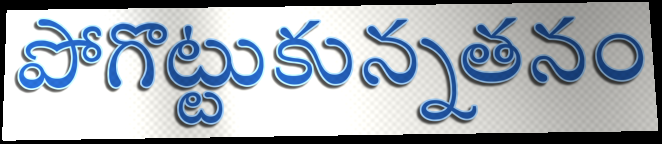
పోగొట్టుకున్నతనం